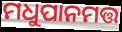
ମଧୁପାନମତ୍ତ